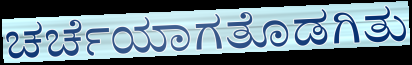
ಚರ್ಚೆಯಾಗತೊಡಗಿತು